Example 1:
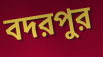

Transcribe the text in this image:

বদরপুর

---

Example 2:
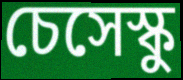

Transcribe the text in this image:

চেসেস্কু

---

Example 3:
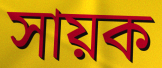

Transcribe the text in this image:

সায়ক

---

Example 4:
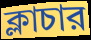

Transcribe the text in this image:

ক্লাচার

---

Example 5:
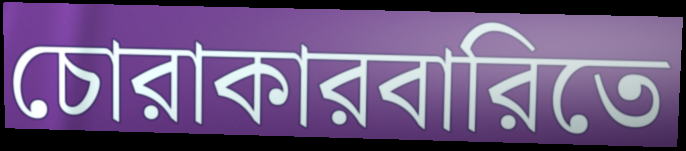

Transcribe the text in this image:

চোরাকারবারিতে